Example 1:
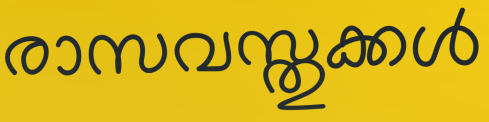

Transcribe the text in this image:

രാസവസ്തുക്കൾ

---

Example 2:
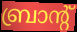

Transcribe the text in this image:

ബ്രാന്റ്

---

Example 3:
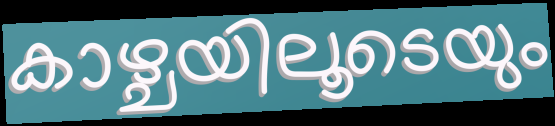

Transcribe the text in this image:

കാഴ്ചയിലൂടെയും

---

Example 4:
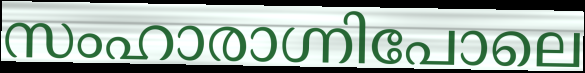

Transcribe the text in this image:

സംഹാരാഗ്നിപോലെ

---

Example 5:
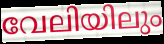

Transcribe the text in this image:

വേലിയിലും